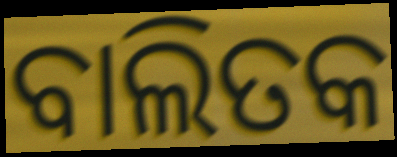
ବାଲିତକ